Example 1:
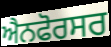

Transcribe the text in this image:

ਐਨਫੋਰਸਰ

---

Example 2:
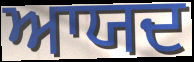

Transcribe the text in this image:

ਆਯਦ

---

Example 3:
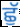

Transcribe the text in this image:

ਛੁੱ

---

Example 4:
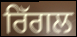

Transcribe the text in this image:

ਰਿੱਗਲ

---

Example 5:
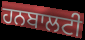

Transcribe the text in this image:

ਹਨਬਾਲਟੀ